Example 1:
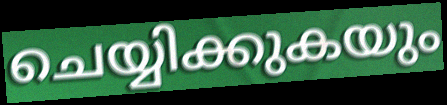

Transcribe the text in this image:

ചെയ്യിക്കുകയും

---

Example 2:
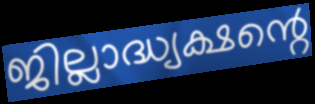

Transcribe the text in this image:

ജില്ലാദ്ധ്യക്ഷന്റെ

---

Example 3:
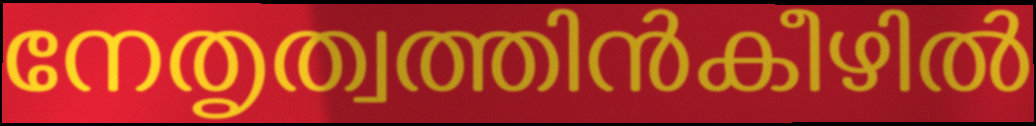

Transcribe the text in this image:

നേതൃത്വത്തിൻകീഴിൽ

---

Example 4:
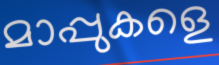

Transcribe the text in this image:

മാപ്പുകളെ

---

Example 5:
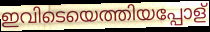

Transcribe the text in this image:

ഇവിടെയെത്തിയപ്പോള്